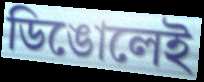
ডিঙোলেই